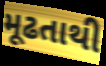
મૂઢતાથી